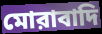
মোরাবাদি